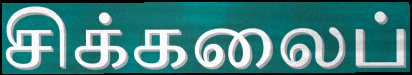
சிக்கலைப்